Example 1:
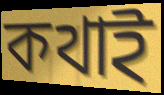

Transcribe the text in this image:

কথাই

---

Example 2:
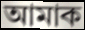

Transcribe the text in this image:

আমাক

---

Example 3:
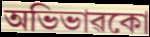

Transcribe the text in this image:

অভিভাৱকো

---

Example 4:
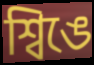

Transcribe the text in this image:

শ্বিঙে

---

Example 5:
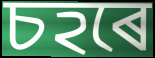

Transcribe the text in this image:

চহৰে